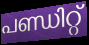
പണ്ഡിറ്റ്